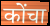
कोंचा